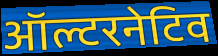
ऑल्टरनेटिव